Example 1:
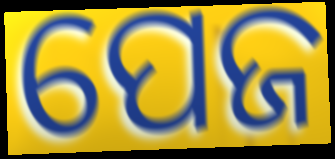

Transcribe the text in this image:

ପେଜ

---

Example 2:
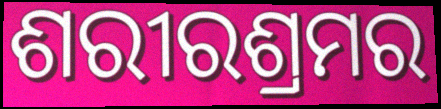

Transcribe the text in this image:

ଶରୀରଶ୍ରମର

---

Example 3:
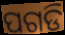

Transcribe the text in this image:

ପଗଡି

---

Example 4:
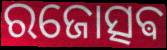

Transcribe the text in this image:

ରଜୋତ୍ସଵ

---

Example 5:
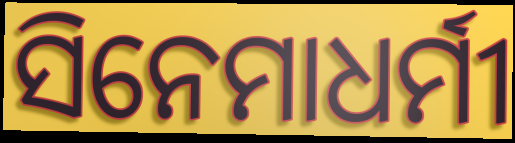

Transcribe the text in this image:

ସିନେମାଧର୍ମୀ